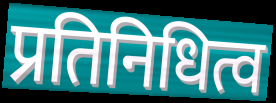
प्रतिनिधित्व